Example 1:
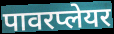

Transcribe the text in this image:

पावरप्लेयर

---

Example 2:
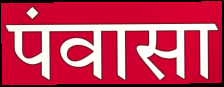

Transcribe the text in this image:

पंवासा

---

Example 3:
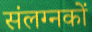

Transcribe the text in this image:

संलग्नकों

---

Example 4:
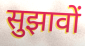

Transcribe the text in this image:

सुझावों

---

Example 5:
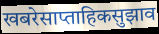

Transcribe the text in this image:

खबरेसाप्ताहिकसुझाव